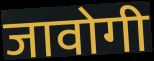
जावोगी